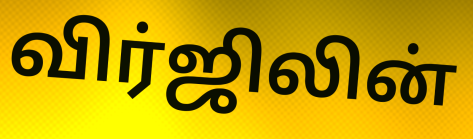
விர்ஜிலின்